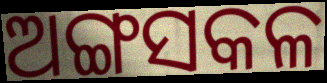
ଅଙ୍ଗସକଳ